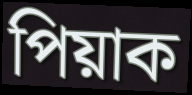
পিয়াক